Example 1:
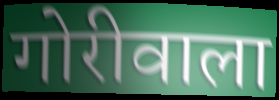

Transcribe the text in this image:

गोरीवाला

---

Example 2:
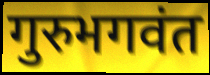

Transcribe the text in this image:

गुरुभगवंत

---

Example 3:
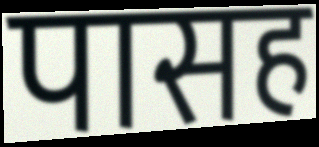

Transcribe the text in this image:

पासह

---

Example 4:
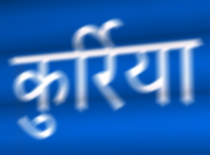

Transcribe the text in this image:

कुर्रिया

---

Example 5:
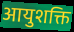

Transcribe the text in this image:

आयुशक्ति